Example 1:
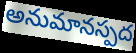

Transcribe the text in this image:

అనుమానస్పద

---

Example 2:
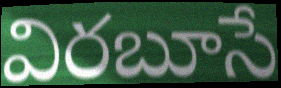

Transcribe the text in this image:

విరబూసే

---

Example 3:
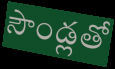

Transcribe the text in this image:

సౌండ్లతో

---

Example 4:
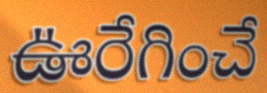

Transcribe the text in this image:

ఊరేగించే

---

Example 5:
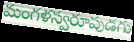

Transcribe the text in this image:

మంగళస్వరూపుడగు